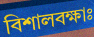
বিশালবক্ষাঃ